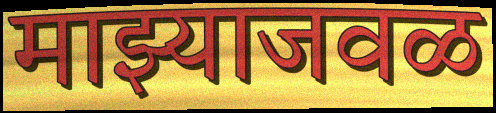
माझ्याजवळ